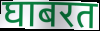
घाबरत